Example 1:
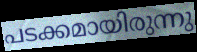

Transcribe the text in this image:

പടക്കമായിരുന്നു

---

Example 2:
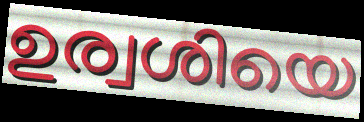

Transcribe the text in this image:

ഉര്വശിയെ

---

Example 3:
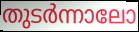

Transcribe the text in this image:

തുടർന്നാലോ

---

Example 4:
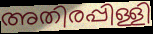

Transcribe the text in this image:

അതിരപ്പിള്ളി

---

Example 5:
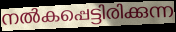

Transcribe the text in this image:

നൽകപ്പെട്ടിരിക്കുന്ന